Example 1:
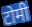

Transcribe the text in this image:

टोमी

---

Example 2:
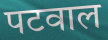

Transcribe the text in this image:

पटवाल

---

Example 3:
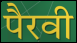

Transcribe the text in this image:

पैरवी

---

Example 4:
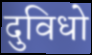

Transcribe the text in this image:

दुविधो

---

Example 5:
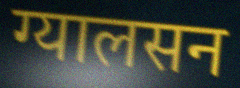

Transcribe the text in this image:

ग्यालसन